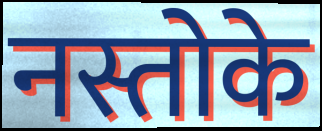
नस्तोके